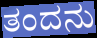
ತಂದನು